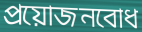
প্ৰয়োজনবোধ